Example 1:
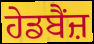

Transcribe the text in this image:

ਹੇਡਬੈਂਜ਼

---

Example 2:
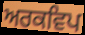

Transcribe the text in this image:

ਅਰਕਵਿਪ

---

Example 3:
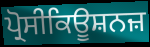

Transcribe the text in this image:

ਪ੍ਰੋਸੀਕਿਊਸ਼ਨਜ਼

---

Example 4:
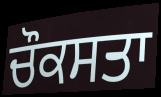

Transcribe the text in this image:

ਚੌਕਸਤਾ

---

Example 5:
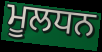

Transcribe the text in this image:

ਮੂਲਧਨ